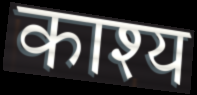
काश्य